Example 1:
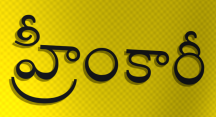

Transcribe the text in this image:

హ్రీంకారీ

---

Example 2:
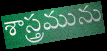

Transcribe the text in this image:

శాస్త్రమును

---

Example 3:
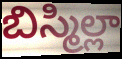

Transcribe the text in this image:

బిస్మిల్లా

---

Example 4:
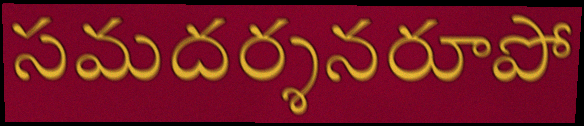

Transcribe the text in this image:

సమదర్శనరూపో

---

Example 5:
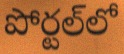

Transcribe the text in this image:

పోర్టల్‌లో